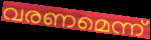
വരണമെന്ന്